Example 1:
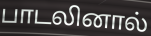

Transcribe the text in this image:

பாடலினால்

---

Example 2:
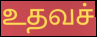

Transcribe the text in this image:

உதவச்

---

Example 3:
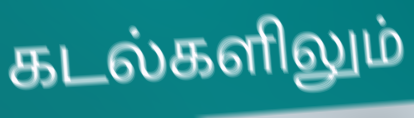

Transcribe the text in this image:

கடல்களிலும்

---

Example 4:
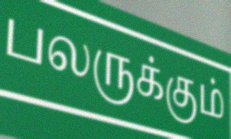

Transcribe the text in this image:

பலருக்கும்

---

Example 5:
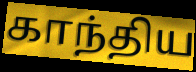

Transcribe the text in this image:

காந்திய